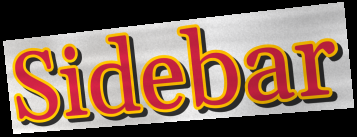
Sidebar